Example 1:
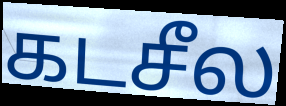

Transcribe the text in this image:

கடசீல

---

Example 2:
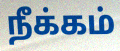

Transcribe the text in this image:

நீக்கம்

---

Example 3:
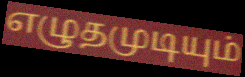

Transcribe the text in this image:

எழுதமுடியும்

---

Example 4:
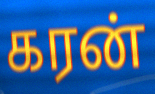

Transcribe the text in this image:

கரன்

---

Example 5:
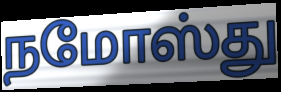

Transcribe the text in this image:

நமோஸ்து